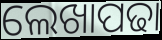
ଲେଖାପଢା